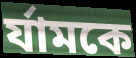
র্যামকে